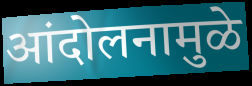
आंदोलनामुळे